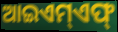
ଆଇଏମ୍ଏଫ୍